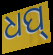
ଧପ୍